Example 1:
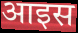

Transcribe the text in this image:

आइस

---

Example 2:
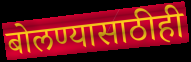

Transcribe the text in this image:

बोलण्यासाठीही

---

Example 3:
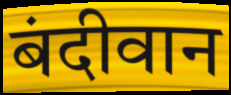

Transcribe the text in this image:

बंदीवान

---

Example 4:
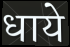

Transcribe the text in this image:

धाये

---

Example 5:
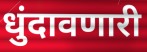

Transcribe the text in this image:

धुंदावणारी